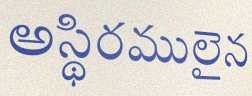
అస్థిరములైన